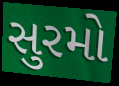
સુરમો